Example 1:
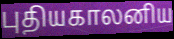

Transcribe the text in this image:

புதியகாலனிய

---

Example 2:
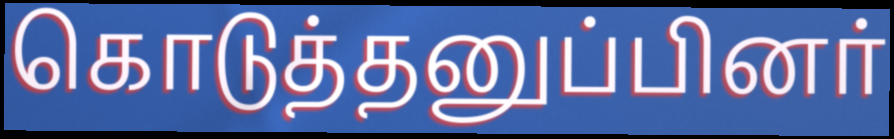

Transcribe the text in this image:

கொடுத்தனுப்பினர்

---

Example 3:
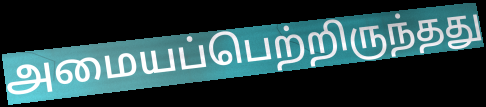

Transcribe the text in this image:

அமையப்பெற்றிருந்தது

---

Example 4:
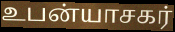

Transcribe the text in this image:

உபன்யாசகர்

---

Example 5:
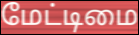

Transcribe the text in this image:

மேட்டிமை